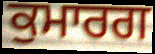
ਕੁਮਾਰਗ